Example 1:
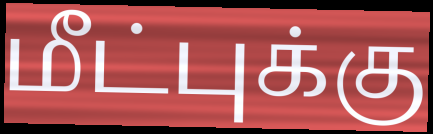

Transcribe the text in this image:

மீட்புக்கு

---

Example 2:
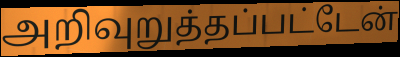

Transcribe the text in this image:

அறிவுறுத்தப்பட்டேன்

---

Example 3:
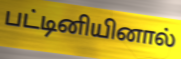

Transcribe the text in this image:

பட்டினியினால்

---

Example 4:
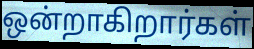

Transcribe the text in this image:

ஒன்றாகிறார்கள்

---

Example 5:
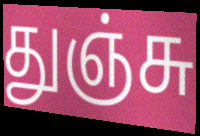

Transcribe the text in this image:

துஞ்சு